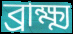
ব্রাক্ষ্ম